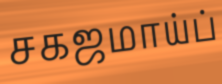
சகஜமாய்ப்